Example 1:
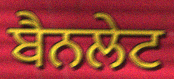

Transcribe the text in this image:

ਬੈਨਲੇਟ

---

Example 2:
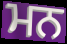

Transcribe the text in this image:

ਮਨ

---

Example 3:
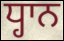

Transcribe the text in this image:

ਧ੍ਹਾਨ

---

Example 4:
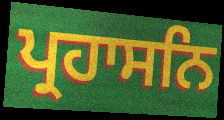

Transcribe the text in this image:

ਪ੍ਰਹਾਸਨਿ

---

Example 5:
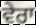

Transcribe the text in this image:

ਵੇਰਾ